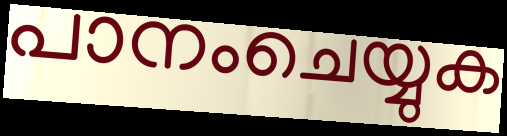
പാനംചെയ്യുക